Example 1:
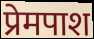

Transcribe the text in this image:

प्रेमपाश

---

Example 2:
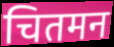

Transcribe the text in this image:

चितमन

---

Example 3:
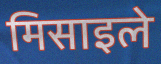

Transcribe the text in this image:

मिसाइले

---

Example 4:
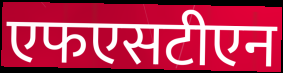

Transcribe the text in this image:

एफएसटीएन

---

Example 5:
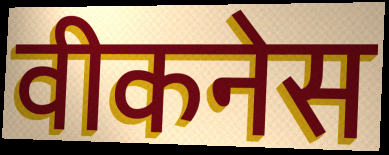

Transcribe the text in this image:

वीकनेस